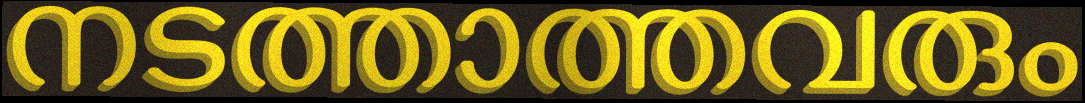
നടത്താത്തവരും